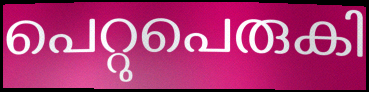
പെറ്റുപെരുകി